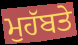
ਮੁਹੱਬਤੇ